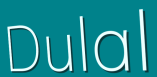
Dulal